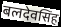
बलदेवसिंह